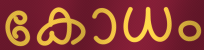
കോധം